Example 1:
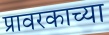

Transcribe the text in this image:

प्रावरकाच्या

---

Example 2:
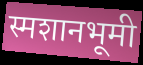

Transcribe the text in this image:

स्मशानभूमी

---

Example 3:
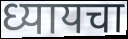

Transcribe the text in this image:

ध्यायचा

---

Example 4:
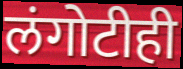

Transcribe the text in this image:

लंगोटीही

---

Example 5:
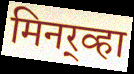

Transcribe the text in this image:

मिनर्व्हा